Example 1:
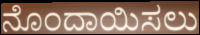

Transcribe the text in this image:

ನೊಂದಾಯಿಸಲು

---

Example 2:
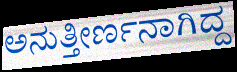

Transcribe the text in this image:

ಅನುತ್ತೀರ್ಣನಾಗಿದ್ದ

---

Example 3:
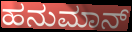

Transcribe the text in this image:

ಹನುಮಾನ್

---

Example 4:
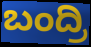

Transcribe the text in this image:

ಬಂದ್ರಿ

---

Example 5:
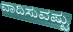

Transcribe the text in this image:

ವಾದಿಸುವಷ್ಟು